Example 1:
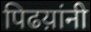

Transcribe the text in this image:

पिढय़ांनी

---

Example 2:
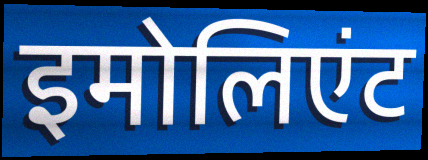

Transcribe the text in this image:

इमोलिएंट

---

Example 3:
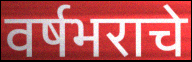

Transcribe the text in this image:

वर्षभराचे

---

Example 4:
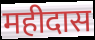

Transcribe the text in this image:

महीदास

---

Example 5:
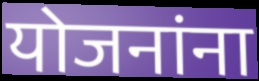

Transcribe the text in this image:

योजनांना